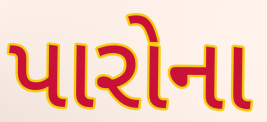
પારોના